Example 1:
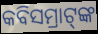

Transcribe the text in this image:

କବିସମ୍ରାଟ୍‌ଙ୍କ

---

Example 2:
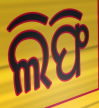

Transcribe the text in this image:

ଲିଫି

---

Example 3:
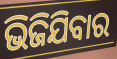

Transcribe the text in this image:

ଭିଜିଯିବାର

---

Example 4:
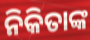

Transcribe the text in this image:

ନିକିତାଙ୍କ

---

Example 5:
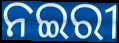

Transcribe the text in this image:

ନଇରୀ